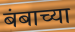
बंबाच्या